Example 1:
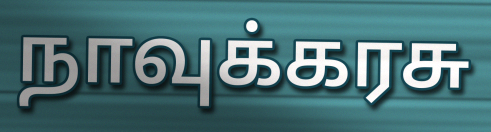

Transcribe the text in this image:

நாவுக்கரசு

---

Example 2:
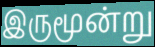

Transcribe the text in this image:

இருமூன்று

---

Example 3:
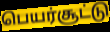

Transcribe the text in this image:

பெயர்சூட்டு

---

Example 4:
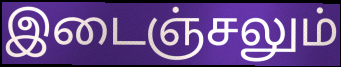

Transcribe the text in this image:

இடைஞ்சலும்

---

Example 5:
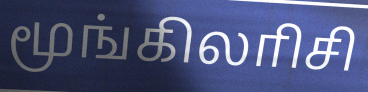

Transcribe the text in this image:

மூங்கிலரிசி